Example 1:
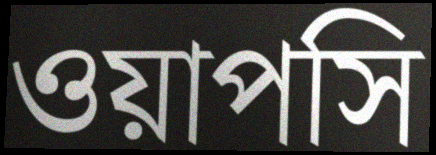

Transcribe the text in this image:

ওয়াপসি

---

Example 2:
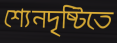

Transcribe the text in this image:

শ্যেনদৃষ্টিতে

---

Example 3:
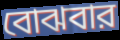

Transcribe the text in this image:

বোঝবার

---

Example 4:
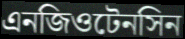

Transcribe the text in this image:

এনজিওটেনসিন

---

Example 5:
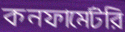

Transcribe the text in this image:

কনফার্মেটরি